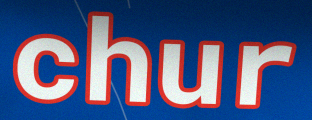
chur